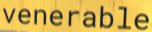
venerable